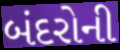
બંદરોની